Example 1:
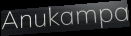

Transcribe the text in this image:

Anukampa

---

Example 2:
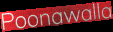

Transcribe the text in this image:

Poonawalla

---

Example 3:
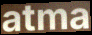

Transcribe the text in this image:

atma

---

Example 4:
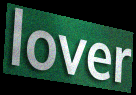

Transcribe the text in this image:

lover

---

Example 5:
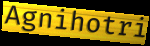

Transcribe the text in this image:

Agnihotri